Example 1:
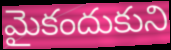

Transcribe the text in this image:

మైకందుకుని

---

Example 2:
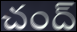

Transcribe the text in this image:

చంద్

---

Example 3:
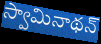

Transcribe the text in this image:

స్వామినాథన్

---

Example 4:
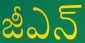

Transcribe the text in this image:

జీఎన్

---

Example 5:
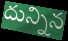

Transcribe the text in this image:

దున్నిన